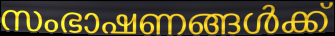
സംഭാഷണങ്ങൾക്ക്